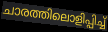
ചാരത്തിലൊളിപ്പിച്ച്